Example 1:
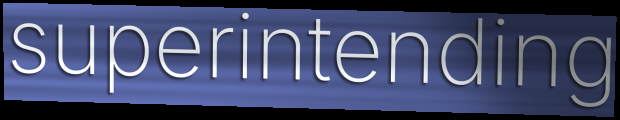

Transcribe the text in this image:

superintending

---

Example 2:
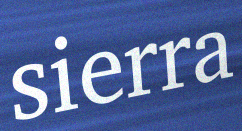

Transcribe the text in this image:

sierra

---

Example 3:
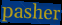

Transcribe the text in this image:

pasher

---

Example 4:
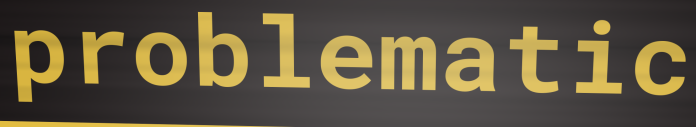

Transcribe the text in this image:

problematic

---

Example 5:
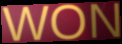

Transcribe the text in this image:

WON